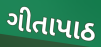
ગીતાપાઠ